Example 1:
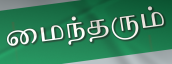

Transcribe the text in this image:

மைந்தரும்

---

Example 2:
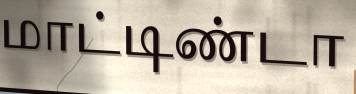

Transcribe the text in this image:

மாட்டிண்டா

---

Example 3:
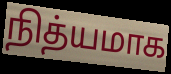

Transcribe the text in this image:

நித்யமாக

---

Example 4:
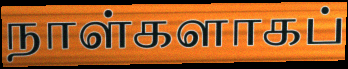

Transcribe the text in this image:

நாள்களாகப்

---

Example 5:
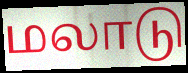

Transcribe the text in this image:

மலாடு